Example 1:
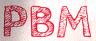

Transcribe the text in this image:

PBM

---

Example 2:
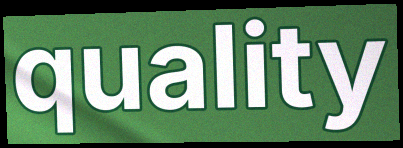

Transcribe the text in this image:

quality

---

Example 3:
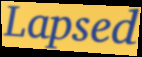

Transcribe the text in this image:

Lapsed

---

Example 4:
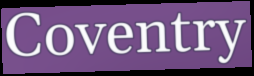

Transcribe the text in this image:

Coventry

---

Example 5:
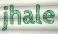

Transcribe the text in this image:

jhale